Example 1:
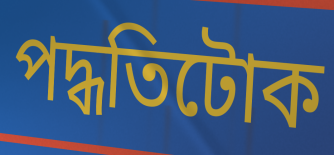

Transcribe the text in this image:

পদ্ধতিটোক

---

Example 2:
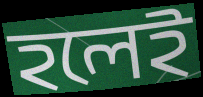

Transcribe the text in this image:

হলেই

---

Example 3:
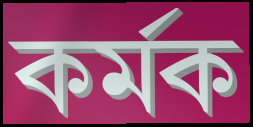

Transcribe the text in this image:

কৰ্মক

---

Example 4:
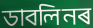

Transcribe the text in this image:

ডাবলিনৰ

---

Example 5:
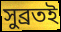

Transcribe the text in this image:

সুব্ৰতই